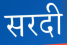
सरदी